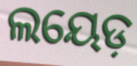
ଲୟେଡ଼